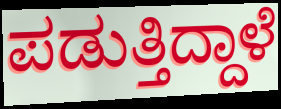
ಪಡುತ್ತಿದ್ದಾಳೆ